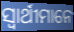
ସ୍ଵାର୍ଥୀମାନେ